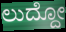
ಲುದ್ದೋ